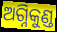
ଅଗ୍ନିକୁଣ୍ଡ